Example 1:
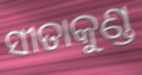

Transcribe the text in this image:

ସୀତାକୁଣ୍ଡ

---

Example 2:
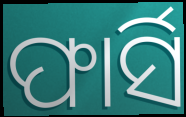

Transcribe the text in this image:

ଫାର୍ସି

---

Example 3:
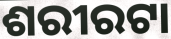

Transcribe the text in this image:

ଶରୀରଟା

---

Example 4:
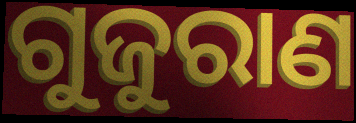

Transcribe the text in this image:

ଗୁଜୁରାଣ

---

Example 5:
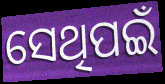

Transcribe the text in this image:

ସେଥିପଇଁ